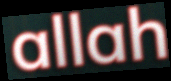
allah